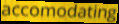
accomodating